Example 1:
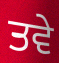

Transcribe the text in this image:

ਤਵੇ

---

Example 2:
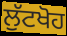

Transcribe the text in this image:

ਲੁੱਟਖੋਹ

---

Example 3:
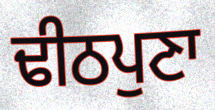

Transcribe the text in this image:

ਢੀਠਪੁਣਾ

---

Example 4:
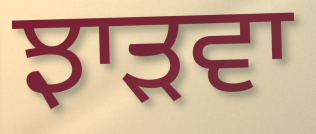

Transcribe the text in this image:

ਝਾੜਵਾ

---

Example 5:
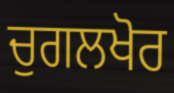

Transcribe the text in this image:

ਚੁਗਲਖੋਰ